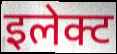
इलेक्ट